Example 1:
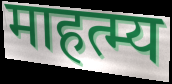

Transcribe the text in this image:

माहत्म्य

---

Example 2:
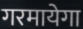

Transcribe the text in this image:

गरमायेगा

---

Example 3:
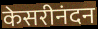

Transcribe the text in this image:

केसरीनंदन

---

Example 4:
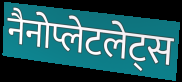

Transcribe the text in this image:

नैनोप्लेटलेट्स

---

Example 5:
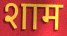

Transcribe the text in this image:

शाम